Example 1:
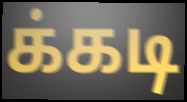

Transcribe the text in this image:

க்கடி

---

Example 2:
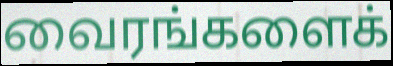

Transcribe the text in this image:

வைரங்களைக்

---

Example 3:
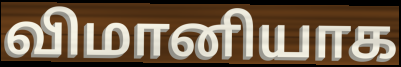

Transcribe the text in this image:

விமானியாக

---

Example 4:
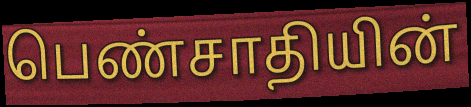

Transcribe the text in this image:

பெண்சாதியின்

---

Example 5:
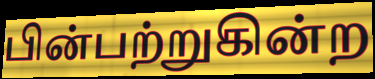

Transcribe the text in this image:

பின்பற்றுகின்ற